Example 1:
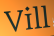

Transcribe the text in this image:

Vill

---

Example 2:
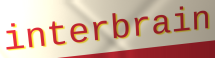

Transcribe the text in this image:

interbrain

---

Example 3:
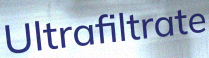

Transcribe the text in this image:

Ultrafiltrate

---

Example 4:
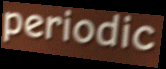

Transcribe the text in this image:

periodic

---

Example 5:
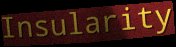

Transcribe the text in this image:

Insularity